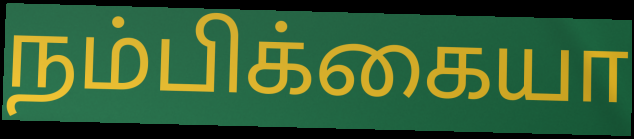
நம்பிக்கையா